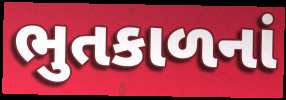
ભુતકાળનાં